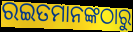
ରଇତମାନଙ୍କଠାରୁ